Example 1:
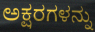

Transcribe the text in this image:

ಅಕ್ಷರಗಳನ್ನು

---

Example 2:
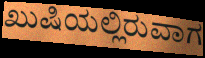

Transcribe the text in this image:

ಖುಷಿಯಲ್ಲಿರುವಾಗ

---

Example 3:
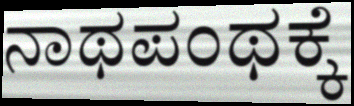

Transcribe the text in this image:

ನಾಥಪಂಥಕ್ಕೆ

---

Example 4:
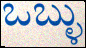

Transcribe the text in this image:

ಒಬ್ಳು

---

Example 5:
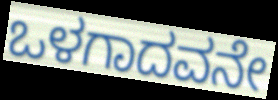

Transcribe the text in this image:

ಒಳಗಾದವನೇ